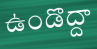
ఉండొద్దా